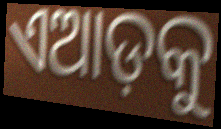
ଏଆଡ଼କୁ